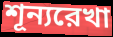
শূন্যরেখা